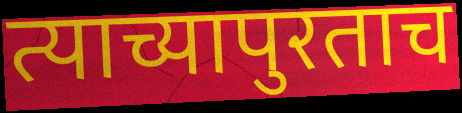
त्याच्यापुरताच